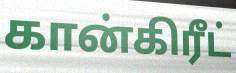
கான்கிரீட்